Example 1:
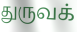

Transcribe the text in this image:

துருவக்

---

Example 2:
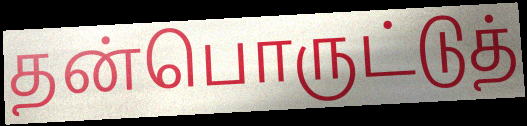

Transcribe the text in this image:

தன்பொருட்டுத்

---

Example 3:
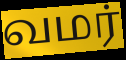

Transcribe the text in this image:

வமர்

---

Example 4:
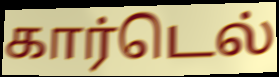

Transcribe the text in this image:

கார்டெல்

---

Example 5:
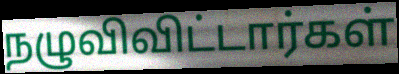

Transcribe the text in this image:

நழுவிவிட்டார்கள்